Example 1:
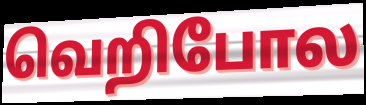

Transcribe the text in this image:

வெறிபோல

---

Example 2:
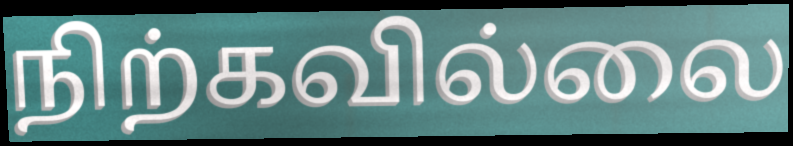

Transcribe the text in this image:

நிற்கவில்லை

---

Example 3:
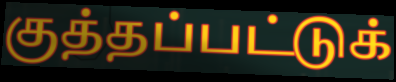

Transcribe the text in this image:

குத்தப்பட்டுக்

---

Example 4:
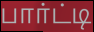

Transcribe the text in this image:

பார்ட்டி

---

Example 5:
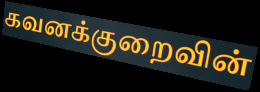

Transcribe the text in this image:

கவனக்குறைவின்